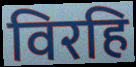
विरहि